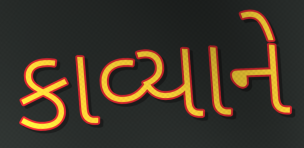
કાવ્યાને